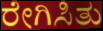
ರೇಗಿಸಿತು